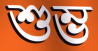
শুম্ভ